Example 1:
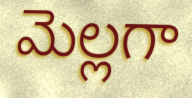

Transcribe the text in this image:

మెల్లగా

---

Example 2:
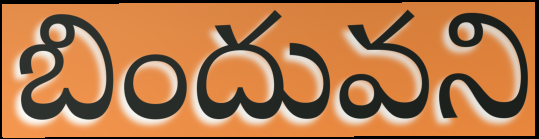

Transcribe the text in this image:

బిందువని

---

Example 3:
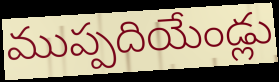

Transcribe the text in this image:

ముప్పదియేండ్లు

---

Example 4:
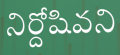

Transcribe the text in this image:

నిర్దోషివని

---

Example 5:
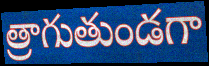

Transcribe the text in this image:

త్రాగుతుండగా